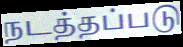
நடத்தப்படு